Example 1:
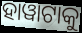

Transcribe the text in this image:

ହାୱାଟାକୁ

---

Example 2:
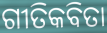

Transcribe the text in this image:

ଗୀତିକବିତା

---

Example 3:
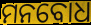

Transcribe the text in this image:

ମନବୋଧ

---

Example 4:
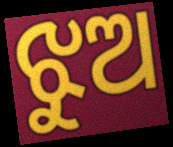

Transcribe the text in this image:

ଝୁଅ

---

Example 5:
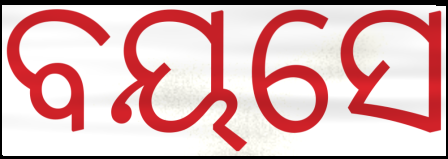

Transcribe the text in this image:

ବୟସେ